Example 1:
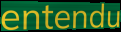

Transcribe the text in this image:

entendu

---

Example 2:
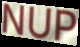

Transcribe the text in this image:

NUP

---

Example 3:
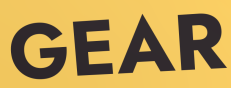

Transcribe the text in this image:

GEAR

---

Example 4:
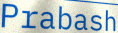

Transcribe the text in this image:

Prabash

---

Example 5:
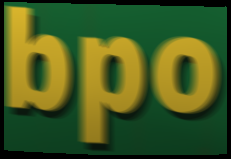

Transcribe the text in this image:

bpo